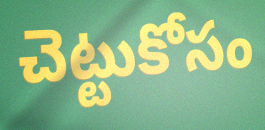
చెట్టుకోసం